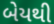
બેયથી